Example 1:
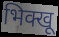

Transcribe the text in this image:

भिक्खू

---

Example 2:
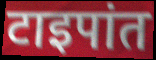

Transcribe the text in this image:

टाइपांत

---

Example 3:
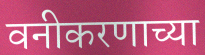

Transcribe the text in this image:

वनीकरणाच्या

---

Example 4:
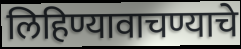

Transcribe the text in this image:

लिहिण्यावाचण्याचे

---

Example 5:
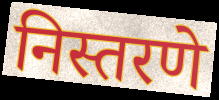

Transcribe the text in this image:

निस्तरणे